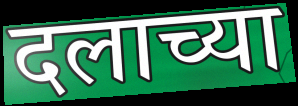
दलाच्या